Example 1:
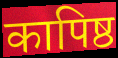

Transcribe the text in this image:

कापिष्ठ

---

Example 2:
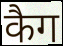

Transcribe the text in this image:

कैग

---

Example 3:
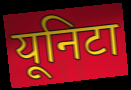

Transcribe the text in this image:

यूनिटा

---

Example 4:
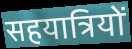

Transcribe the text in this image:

सहयात्रियों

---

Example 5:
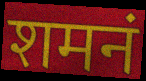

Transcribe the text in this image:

शमनं